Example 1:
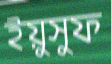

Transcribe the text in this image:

ইয়ুসুফ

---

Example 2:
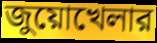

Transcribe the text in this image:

জুয়োখেলার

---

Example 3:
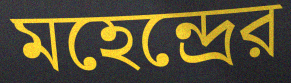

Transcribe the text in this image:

মহেন্দ্রের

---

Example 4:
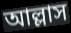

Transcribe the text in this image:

আল্লাস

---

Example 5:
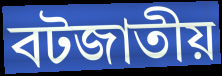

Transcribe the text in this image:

বটজাতীয়